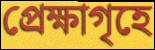
প্রেক্ষাগৃহে